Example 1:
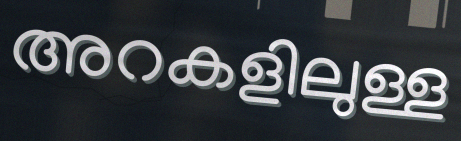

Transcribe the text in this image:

അറകളിലുള്ള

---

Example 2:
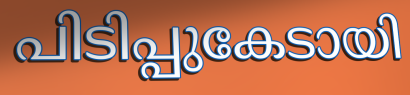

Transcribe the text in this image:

പിടിപ്പുകേടായി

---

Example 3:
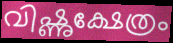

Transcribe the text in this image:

വിഷ്ണുക്ഷേത്രം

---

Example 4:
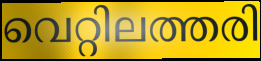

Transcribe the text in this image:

വെറ്റിലത്തരി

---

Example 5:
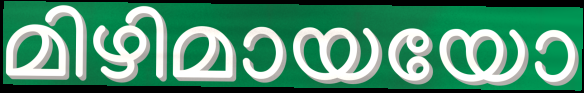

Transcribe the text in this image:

മിഴിമായയോ